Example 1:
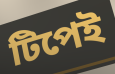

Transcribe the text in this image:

টিপেই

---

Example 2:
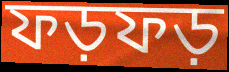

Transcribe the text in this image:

ফড়ফড়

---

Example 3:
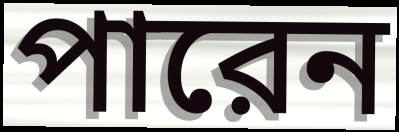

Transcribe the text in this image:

পারেন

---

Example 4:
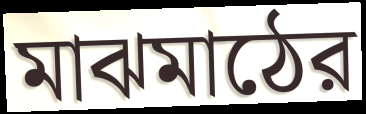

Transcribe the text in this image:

মাঝমাঠের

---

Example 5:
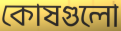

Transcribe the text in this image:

কোষগুলো